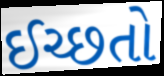
ઈચ્છતો